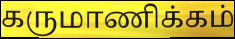
கருமாணிக்கம்